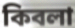
কিবলা